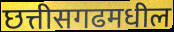
छत्तीसगढमधील